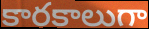
కారకాలుగా